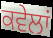
ਕਵੇਲਾਂ